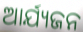
ଆର୍ଯ୍ୟଜନ